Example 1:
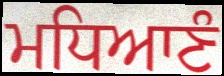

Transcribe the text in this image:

ਮਧਿਆਣੰ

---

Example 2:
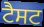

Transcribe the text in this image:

ਟੈਸਟ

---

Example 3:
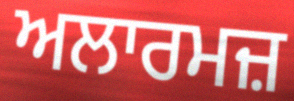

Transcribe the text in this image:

ਅਲਾਰਮਜ਼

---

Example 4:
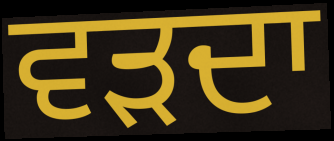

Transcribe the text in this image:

ਵੜਦਾ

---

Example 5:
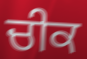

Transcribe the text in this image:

ਚੀਕ